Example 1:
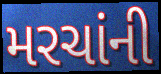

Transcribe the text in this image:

મરચાંની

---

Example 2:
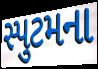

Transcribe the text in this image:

સ્પુટમના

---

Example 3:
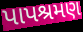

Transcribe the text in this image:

પાપશ્રમણ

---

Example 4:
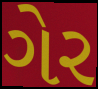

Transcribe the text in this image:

ગેર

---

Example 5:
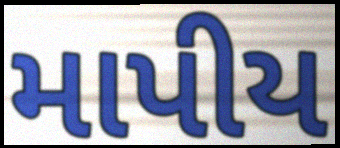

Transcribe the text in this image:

માપીય